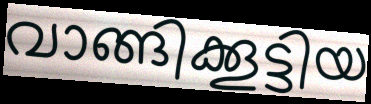
വാങ്ങിക്കൂട്ടിയ